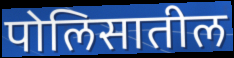
पोलिसातील